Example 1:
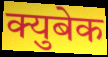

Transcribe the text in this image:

क्युबेक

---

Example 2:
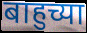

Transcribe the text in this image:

बाहुच्या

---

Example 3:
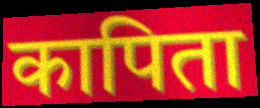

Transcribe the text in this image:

कापिता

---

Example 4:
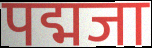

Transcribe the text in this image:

पद्मजा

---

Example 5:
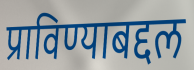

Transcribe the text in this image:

प्राविण्याबद्दल